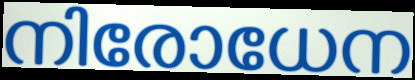
നിരോധേന